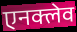
एनक्लेव